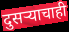
दुसऱ्याचाही